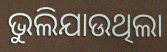
ଭୁଲିଯାଉଥିଲା